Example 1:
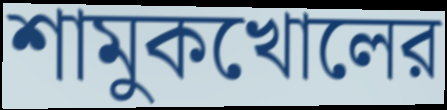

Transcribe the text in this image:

শামুকখোলের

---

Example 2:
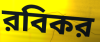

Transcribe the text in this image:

রবিকর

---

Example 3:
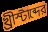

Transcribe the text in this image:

খ্রীস্টাব্দের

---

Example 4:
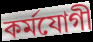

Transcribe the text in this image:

কর্মযোগী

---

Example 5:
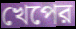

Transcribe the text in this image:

খেপের